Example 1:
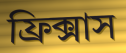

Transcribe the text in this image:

ফ্রিক্সাস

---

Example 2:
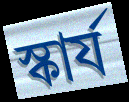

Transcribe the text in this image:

স্কার্য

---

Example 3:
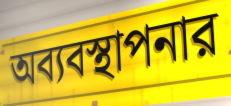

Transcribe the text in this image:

অব্যবস্থাপনার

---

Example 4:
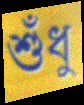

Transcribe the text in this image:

শুঁধু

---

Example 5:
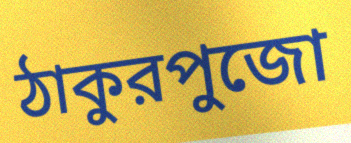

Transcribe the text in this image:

ঠাকুরপুজো